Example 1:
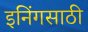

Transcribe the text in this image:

इनिंगसाठी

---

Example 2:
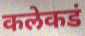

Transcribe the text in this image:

कलेकडं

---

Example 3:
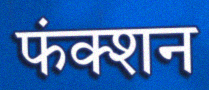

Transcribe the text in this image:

फंक्शन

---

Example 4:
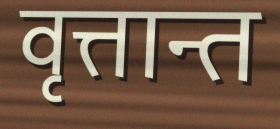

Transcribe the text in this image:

वृत्तान्त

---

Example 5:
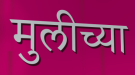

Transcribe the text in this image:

मुलीच्या